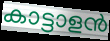
കാട്ടാളൻ